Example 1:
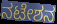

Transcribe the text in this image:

ನಟೇಶನ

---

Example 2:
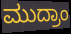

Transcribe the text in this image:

ಮುದ್ರಾಂ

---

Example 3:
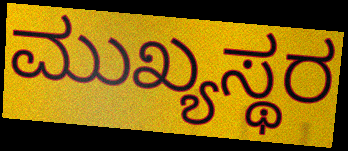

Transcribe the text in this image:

ಮುಖ್ಯಸ್ಥರ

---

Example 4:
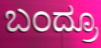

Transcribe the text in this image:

ಬಂದ್ರೂ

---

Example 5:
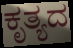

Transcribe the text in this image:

ಕೃತ್ಯದ